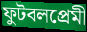
ফুটবলপ্রেমী